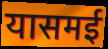
यासमई